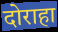
दोराहा